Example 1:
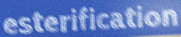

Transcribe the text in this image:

esterification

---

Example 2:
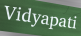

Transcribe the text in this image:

Vidyapati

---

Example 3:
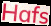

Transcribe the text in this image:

Hafs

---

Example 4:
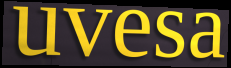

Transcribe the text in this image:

uvesa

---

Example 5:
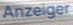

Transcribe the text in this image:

Anzeiger